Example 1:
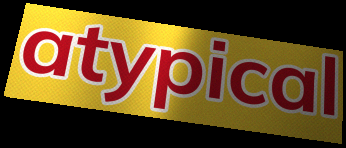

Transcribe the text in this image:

atypical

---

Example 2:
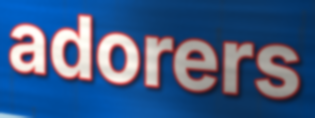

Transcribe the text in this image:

adorers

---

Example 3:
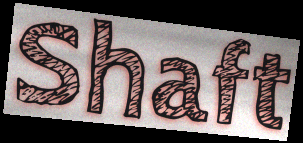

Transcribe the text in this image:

Shaft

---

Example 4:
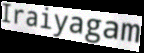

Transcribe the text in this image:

Iraiyagam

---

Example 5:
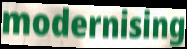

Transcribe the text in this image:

modernising